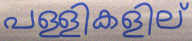
പള്ളികളില്